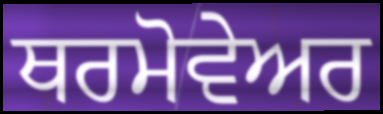
ਥਰਮੋਵੇਅਰ